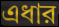
এধার